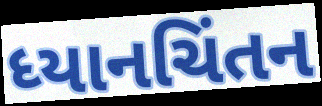
ધ્યાનચિંતન